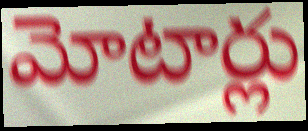
మోటార్లు